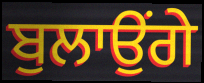
ਬੁਲਾਉਂਗੇ